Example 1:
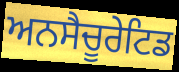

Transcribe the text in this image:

ਅਨਸੈਚੂਰੇਟਿਡ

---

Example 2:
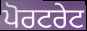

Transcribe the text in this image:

ਪੋਰਟਰੇਟ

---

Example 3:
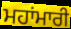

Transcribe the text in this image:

ਮਹਾਂਮਾਰੀ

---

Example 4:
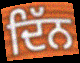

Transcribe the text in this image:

ਦਿੱਨ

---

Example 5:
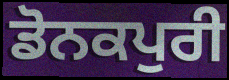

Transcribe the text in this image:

ਡੋਨਕਪੁਰੀ